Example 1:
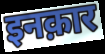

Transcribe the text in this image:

इनक़ार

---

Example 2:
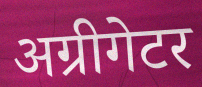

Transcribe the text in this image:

अग्रीगेटर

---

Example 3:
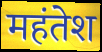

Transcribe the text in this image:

महंतेश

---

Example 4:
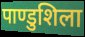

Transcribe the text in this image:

पाण्डुशिला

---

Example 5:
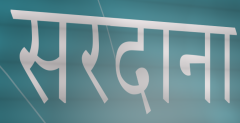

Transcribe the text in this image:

सरदाना